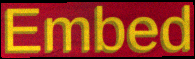
Embed